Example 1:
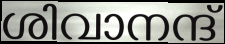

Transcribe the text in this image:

ശിവാനന്ദ്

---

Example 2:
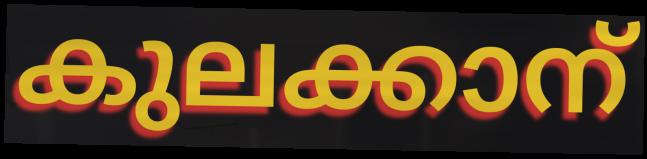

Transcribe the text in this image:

കുലക്കാന്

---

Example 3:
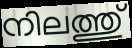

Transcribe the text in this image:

നിലത്തു്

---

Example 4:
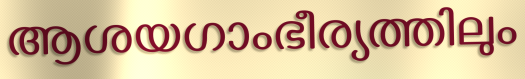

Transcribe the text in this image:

ആശയഗാംഭീര്യത്തിലും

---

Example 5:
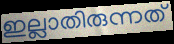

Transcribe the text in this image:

ഇല്ലാതിരുന്നത്